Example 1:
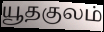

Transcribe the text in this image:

யூதகுலம்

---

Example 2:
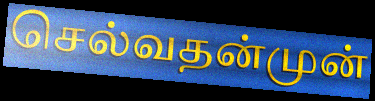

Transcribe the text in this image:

செல்வதன்முன்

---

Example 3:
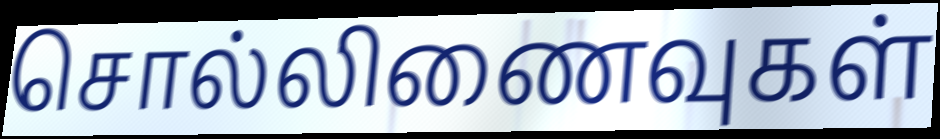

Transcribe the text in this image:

சொல்லிணைவுகள்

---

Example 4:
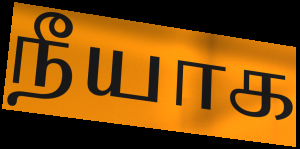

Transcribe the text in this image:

நீயாக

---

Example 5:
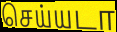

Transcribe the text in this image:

செய்யடா